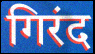
गिरंद